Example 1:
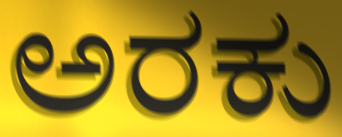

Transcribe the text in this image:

ಅರಕು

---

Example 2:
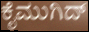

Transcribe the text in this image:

ಕೈಮುಗಿದ್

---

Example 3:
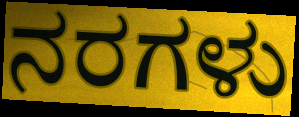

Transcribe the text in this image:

ನರಗಳು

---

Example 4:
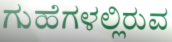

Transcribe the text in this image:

ಗುಹೆಗಳಲ್ಲಿರುವ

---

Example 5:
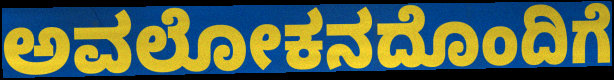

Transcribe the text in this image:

ಅವಲೋಕನದೊಂದಿಗೆ